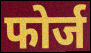
फोर्ज